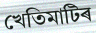
খেতিমাটিৰ